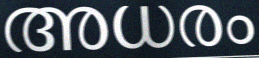
അധരം